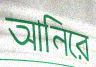
আনিরে